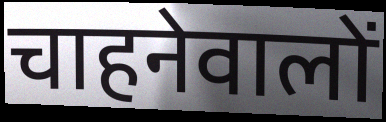
चाहनेवालों